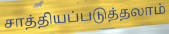
சாத்தியப்படுத்தலாம்